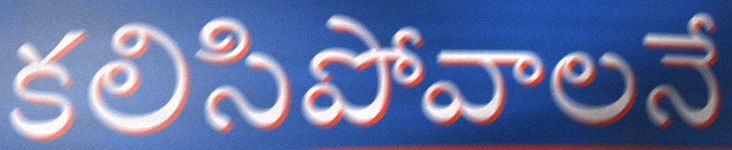
కలిసిపోవాలనే